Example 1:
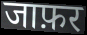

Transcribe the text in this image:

जाफ़र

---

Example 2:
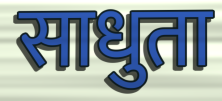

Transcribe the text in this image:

साधुता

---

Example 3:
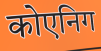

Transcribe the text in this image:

कोएनिग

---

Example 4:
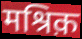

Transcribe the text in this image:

मश्रिक़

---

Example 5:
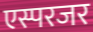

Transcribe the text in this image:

एस्परजर